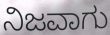
ನಿಜವಾಗು